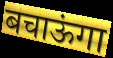
बचाऊंगा